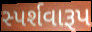
સ્પર્શવારૂપ